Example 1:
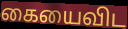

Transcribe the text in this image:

கையைவிட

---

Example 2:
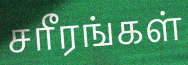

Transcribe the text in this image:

சரீரங்கள்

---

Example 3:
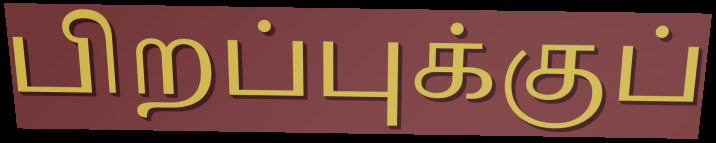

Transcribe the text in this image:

பிறப்புக்குப்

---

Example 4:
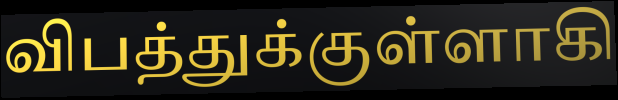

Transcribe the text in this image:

விபத்துக்குள்ளாகி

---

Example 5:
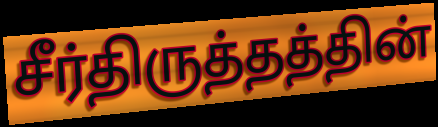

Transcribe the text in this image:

சீர்திருத்தத்தின்